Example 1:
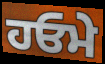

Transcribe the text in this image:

ਹਓਮੇ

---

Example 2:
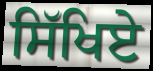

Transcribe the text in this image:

ਸਿੱਖਿਏ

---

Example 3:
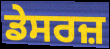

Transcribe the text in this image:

ਡੇਸਰਜ਼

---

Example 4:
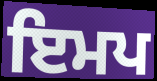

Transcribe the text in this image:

ਇਮਪ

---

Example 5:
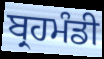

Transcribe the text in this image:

ਬ੍ਰਹਮੰਡੀ